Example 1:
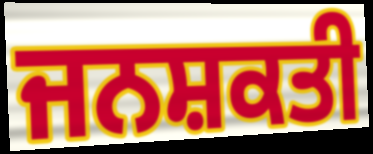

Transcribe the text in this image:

ਜਨਸ਼ਕਤੀ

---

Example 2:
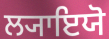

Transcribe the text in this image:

ਲ੍ਯਾਇਯੋ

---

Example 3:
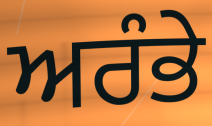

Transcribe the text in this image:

ਅਰੰਭੇ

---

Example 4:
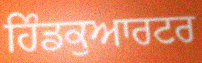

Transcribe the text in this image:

ਹਿੰਡਕੁਆਰਟਰ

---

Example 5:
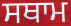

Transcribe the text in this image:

ਸਥਾਮ